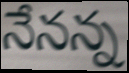
నేనన్న